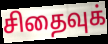
சிதைவுக்